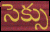
సెక్సు